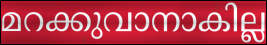
മറക്കുവാനാകില്ല